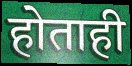
होताही